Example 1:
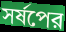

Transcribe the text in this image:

সর্ষপের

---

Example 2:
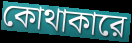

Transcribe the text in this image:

কোথাকারে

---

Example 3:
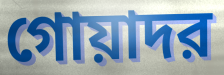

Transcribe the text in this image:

গোয়াদর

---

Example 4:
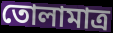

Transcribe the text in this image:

তোলামাত্র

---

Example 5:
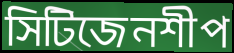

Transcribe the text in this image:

সিটিজেনশীপ